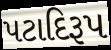
પટાદિરૂપ